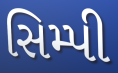
સિમ્પી